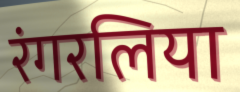
रंगरलिया